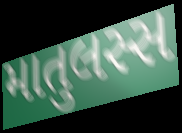
માતુલસ્સ